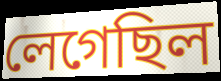
লেগেছিল